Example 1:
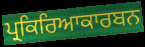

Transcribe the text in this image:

ਪ੍ਰਕਿਰਿਆਕਾਰਬਨ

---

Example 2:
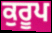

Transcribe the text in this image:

ਕੁਰੂਪ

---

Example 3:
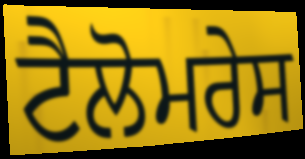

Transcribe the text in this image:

ਟੈਲੋਮਰੇਸ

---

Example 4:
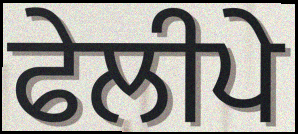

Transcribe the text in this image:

ਫੇਲੀਪੇ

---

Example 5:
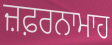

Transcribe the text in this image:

ਜ਼ਫ਼ਰਨਾਮਾਹ